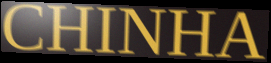
CHINHA